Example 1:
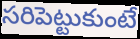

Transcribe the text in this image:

సరిపెట్టుకుంటే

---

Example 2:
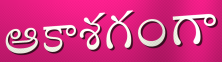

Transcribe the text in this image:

ఆకాశగంగా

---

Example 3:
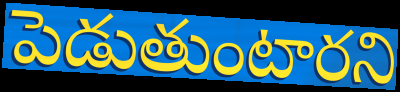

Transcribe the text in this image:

పెడుతుంటారని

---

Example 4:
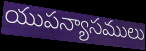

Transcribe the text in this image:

యుపన్యాసములు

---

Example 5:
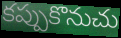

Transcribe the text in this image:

కప్పుకొనుచు